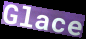
Glace